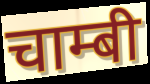
चाम्बी